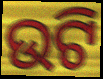
ଉଟି